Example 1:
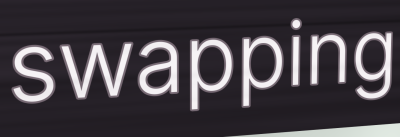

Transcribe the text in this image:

swapping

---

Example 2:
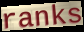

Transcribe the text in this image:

ranks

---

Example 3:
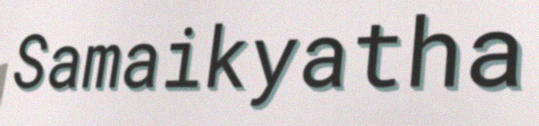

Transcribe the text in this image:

Samaikyatha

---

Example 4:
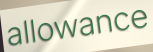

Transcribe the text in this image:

allowance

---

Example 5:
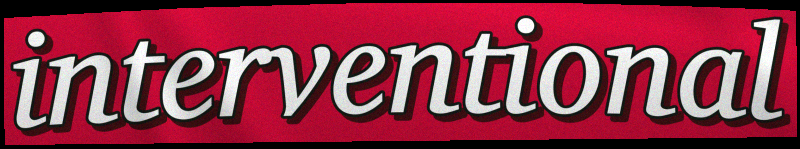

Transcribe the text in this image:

interventional